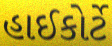
હાઈકોર્ટે